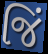
જિં